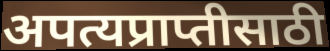
अपत्यप्राप्तीसाठी